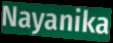
Nayanika